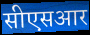
सीएसआर